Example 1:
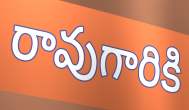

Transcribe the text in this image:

రావుగారికి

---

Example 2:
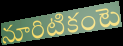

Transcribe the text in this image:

నూరిటికంటె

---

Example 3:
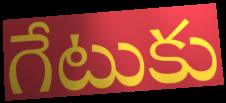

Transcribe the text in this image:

గేటుకు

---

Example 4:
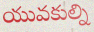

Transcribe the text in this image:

యువకుల్ని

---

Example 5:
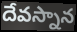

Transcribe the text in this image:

దేవస్నాన